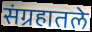
संग्रहातले